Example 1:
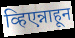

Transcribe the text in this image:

व्हिएन्नाहून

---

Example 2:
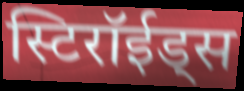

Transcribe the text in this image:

स्टिरॉईड्स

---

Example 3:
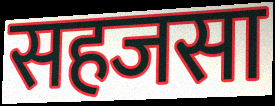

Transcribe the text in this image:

सहजसा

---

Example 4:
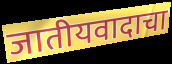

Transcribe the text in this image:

जातीयवादाचा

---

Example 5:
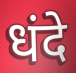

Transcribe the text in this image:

धंदे